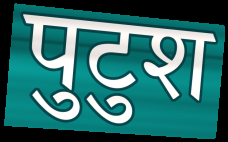
पुटुश